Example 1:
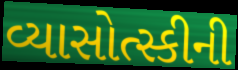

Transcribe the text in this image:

વ્યાસોત્સ્કીની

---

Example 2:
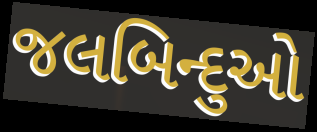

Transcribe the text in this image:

જલબિન્દુઓ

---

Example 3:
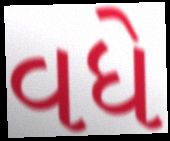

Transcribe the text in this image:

વધે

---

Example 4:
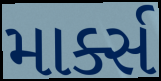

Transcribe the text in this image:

માર્ક્સ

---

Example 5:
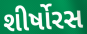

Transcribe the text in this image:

શીર્ષોરસ